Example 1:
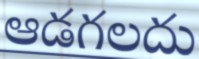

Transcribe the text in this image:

ఆడగలదు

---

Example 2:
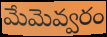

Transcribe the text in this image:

మేమెవ్వరం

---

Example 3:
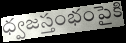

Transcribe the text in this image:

ధ్వజస్తంభంపైకి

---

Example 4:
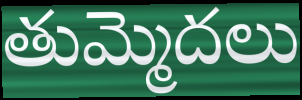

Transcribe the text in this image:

తుమ్మెదలు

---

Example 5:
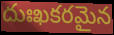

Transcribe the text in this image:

దుఃఖకరమైన